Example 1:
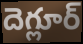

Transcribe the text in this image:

దెగ్లూర్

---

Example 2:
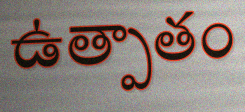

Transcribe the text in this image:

ఉత్పాతం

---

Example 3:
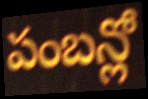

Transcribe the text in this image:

పంబన్లో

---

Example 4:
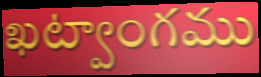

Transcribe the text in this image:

ఖట్వాంగము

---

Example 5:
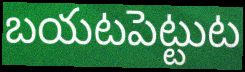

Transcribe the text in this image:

బయటపెట్టుట